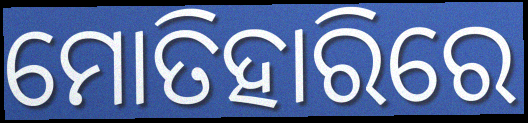
ମୋତିହାରିରେ